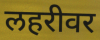
लहरीवर